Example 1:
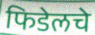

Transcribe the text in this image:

फिडेलचे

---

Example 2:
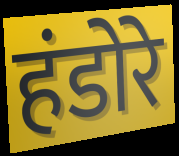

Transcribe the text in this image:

हंडोरे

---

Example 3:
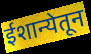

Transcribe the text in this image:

ईशान्येतून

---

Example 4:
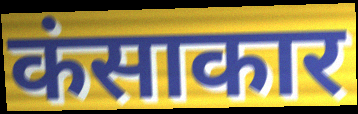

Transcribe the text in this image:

कंसाकार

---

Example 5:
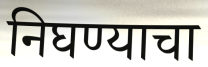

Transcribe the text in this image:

निघण्याचा